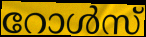
റോൾസ്